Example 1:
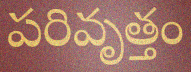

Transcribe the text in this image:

పరివృత్తం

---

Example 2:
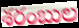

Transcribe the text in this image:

శరంబుల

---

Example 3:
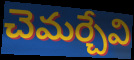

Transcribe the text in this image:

చెమర్చేవి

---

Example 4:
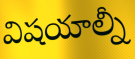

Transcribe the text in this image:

విషయాల్నీ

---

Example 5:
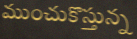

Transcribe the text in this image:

ముంచుకొస్తున్న